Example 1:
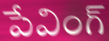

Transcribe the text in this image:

పేవింగ్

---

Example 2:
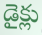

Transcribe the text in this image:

డైక్లు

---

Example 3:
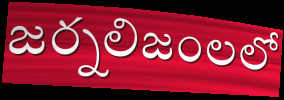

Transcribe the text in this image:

జర్నలిజంలలో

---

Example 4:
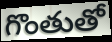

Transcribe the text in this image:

గొంతుతో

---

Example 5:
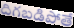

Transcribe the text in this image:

దిగబడిపోతే